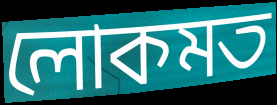
লোকমত